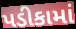
પડીકામાં